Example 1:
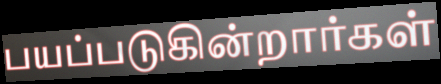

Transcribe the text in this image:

பயப்படுகின்றார்கள்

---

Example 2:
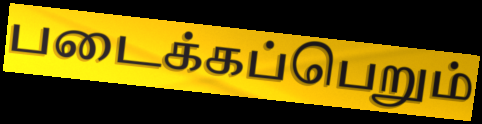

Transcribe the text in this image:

படைக்கப்பெறும்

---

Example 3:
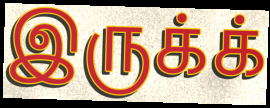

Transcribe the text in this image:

இருக்க்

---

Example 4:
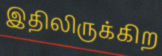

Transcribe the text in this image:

இதிலிருக்கிற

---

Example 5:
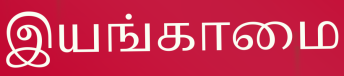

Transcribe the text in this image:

இயங்காமை